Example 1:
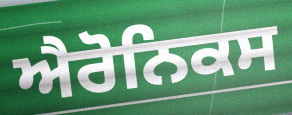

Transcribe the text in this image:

ਐਰੋਨਿਕਸ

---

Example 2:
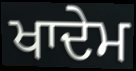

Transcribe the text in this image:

ਖਾਦੇਮ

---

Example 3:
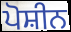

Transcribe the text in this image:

ਪੋਸ਼ੀਨ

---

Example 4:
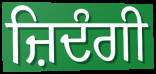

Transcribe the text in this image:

ਜ਼ਿਦੰਗੀ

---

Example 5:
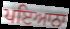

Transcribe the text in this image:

ਪਇਆਨਾ